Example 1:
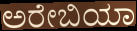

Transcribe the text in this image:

ಅರೇಬಿಯಾ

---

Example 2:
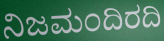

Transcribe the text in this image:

ನಿಜಮಂದಿರದಿ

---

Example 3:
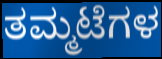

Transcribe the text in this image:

ತಮ್ಮಟೆಗಳ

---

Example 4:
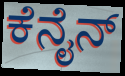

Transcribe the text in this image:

ಕೆನೈನ್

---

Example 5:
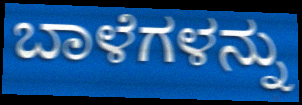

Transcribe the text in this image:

ಬಾಳೆಗಳನ್ನು